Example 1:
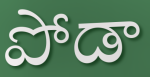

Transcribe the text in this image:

పోడా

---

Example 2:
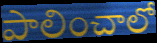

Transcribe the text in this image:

పాలించాలో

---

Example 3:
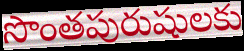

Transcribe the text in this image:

సొంతపురుషులకు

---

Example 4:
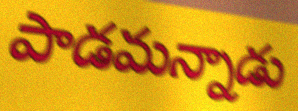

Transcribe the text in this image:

పాడమన్నాడు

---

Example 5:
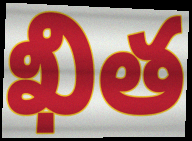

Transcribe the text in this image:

ఖిత